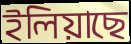
ইলিয়াছে